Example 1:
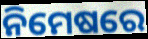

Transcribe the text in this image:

ନିମେଷରେ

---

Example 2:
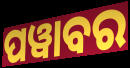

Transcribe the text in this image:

ପୱାବର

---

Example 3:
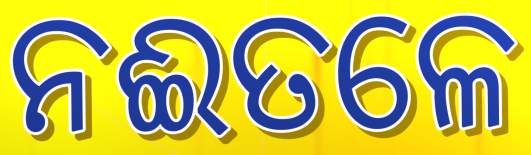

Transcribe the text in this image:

ନଈତଳେ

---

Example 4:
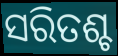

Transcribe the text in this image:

ସରିତଶ୍ଚ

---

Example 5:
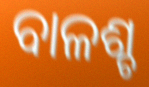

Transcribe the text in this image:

ବାଳଶ୍ଚ